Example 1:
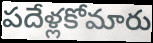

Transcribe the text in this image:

పదేళ్లకోమారు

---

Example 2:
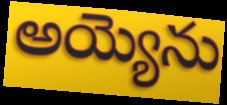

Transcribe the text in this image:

అయ్యెను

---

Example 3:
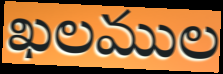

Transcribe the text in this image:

ఖలముల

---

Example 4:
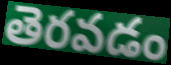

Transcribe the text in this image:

తెరవడం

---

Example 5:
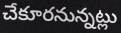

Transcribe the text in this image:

చేకూరనున్నట్లు